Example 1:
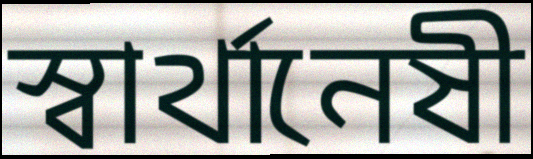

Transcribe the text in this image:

স্বার্থানেষী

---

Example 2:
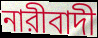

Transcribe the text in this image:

নারীবাদী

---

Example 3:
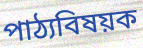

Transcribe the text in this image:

পাঠ্যবিষয়ক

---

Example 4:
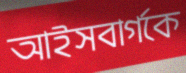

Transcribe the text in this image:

আইসবার্গকে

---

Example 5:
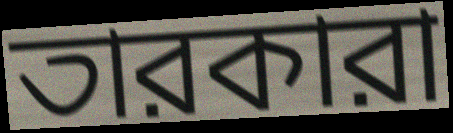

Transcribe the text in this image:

তারকারা